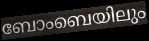
ബോംബെയിലും